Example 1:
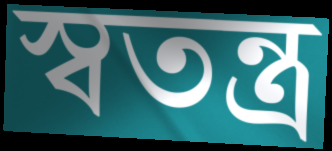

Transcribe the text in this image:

স্বতন্ত্ৰ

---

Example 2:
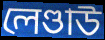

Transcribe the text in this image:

লেণ্ডাউ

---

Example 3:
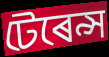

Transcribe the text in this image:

টেৰেন্স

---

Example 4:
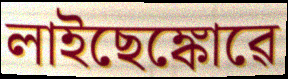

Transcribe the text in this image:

লাইছেঙ্কোৱে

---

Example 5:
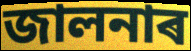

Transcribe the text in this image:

জালনাৰ